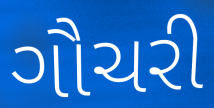
ગૌચરી